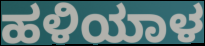
ಹಳಿಯಾಳ